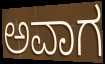
ಅವಾಗ